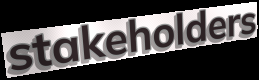
stakeholders